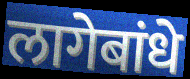
लागेबांधे